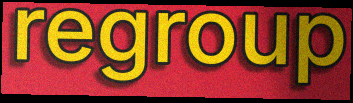
regroup